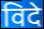
विदे